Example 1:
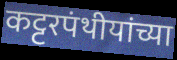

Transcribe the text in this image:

कट्टरपंथीयांच्या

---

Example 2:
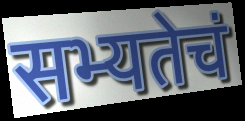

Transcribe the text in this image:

सभ्यतेचं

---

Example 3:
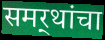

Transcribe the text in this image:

समर्थांचा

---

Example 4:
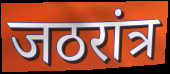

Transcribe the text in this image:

जठरांत्र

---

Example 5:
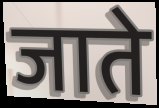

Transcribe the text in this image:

जाते